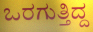
ಒರಗುತ್ತಿದ್ದ